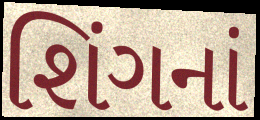
શિંગનાં